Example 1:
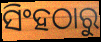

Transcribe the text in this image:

ସିଂହଠାରୁ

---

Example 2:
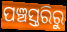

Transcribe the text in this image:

ପଞ୍ଚସ୍ତରିରୁ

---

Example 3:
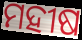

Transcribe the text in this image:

ମହୀଷ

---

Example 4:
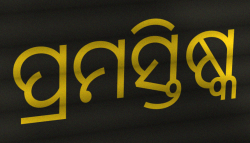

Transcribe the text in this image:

ପ୍ରମସ୍ତିଷ୍କ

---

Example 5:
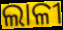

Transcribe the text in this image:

ଲାଳୀ